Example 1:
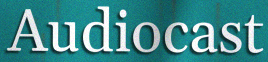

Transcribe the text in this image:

Audiocast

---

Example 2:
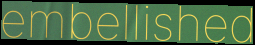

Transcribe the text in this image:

embellished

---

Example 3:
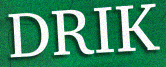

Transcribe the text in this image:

DRIK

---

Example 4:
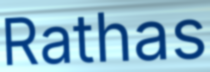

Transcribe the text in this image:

Rathas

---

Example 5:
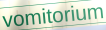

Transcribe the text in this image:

vomitorium